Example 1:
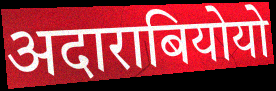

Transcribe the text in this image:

अदाराबियोयो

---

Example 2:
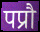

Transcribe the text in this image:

पप्रौ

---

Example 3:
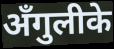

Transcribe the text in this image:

अँगुलीके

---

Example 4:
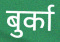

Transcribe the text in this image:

बुर्का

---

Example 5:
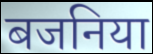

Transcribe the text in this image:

बजनिया